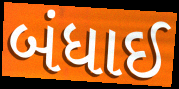
બંધાઈ